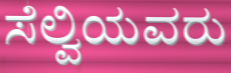
ಸೆಲ್ವಿಯವರು